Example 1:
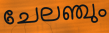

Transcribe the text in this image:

ചേലഞ്ചും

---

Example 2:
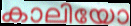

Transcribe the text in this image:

കാലിയോ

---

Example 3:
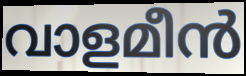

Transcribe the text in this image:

വാളമീൻ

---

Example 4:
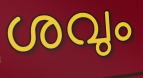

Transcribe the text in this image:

ശവും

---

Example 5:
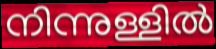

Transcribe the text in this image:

നിന്നുള്ളിൽ